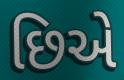
છિએ